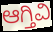
ಆಗ್ತಿವಿ